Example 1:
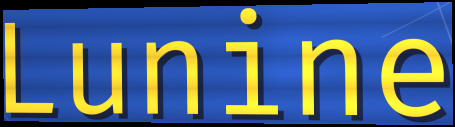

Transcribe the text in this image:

Lunine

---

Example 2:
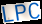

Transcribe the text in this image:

LPC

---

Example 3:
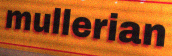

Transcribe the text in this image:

mullerian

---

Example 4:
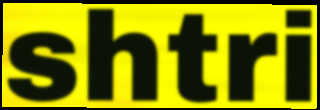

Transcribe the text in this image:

shtri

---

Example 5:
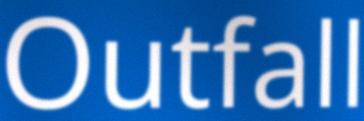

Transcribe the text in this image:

Outfall